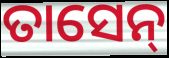
ତାସେନ୍